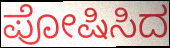
ಪೋಷಿಸಿದ